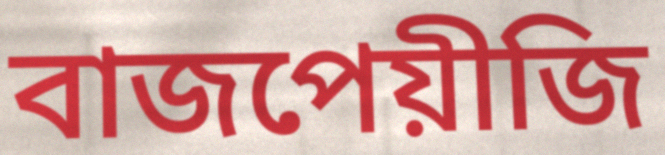
বাজপেয়ীজি